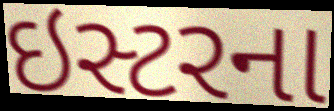
ઇસ્ટરના